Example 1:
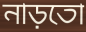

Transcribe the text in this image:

নাড়তো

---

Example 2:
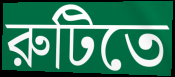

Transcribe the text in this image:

রুটিতে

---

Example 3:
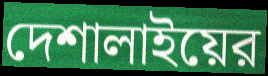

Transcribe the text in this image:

দেশালাইয়ের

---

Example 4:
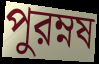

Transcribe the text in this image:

পুরম্নষ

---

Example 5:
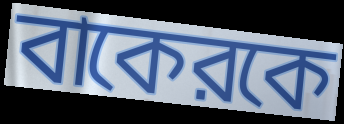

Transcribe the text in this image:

বাকেরকে